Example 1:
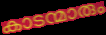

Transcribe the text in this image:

കാടന്മാരും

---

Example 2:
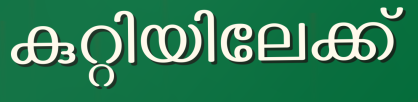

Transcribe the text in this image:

കുറ്റിയിലേക്ക്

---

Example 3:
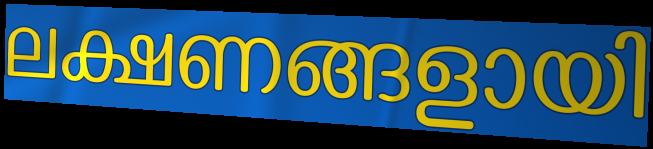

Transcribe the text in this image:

ലക്ഷണങ്ങളായി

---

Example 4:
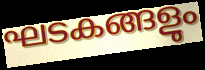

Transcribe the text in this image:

ഘടകങ്ങളും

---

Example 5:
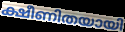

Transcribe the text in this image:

ക്ഷീണിതയായി